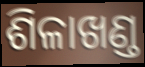
ଶିଳାଖଣ୍ଡ